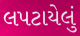
લપટાયેલું